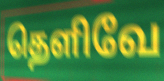
தெளிவே